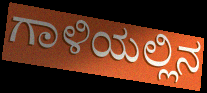
ಗಾಳಿಯಲ್ಲಿನ